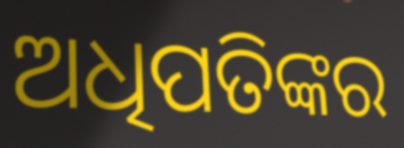
ଅଧିପତିଙ୍କର